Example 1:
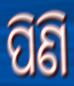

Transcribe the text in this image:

ପିଣି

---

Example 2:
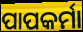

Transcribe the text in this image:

ପାପକର୍ମା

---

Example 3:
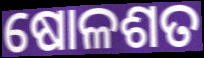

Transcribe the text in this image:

ଷୋଳଶତ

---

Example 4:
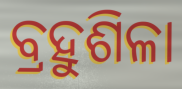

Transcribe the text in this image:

ବ୍ରହୁଶିଳା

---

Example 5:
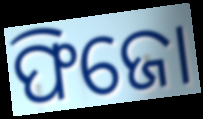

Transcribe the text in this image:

ଫିଜୋ